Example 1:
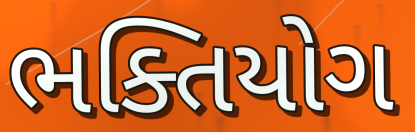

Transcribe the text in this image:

ભક્તિયોગ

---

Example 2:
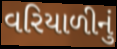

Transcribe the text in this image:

વરિયાળીનું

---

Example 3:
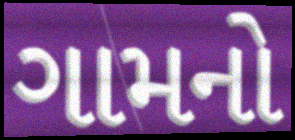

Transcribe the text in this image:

ગામનો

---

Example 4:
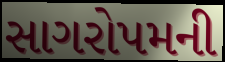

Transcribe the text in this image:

સાગરોપમની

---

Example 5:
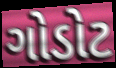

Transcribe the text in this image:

ગોડોટ